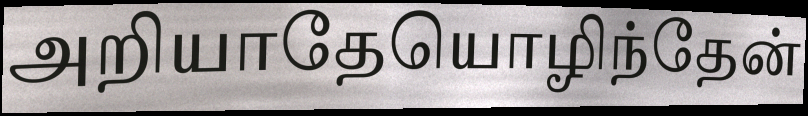
அறியாதேயொழிந்தேன்